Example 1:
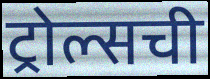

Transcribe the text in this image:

ट्रोल्सची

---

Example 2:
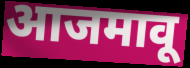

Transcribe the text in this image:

आजमावू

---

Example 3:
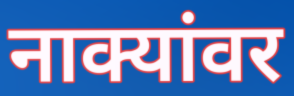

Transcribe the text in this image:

नाक्यांवर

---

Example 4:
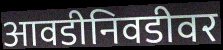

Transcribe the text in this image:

आवडीनिवडीवर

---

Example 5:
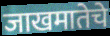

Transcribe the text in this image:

जाखमातेचे